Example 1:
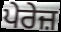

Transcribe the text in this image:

ਪੇਰੇਜ਼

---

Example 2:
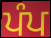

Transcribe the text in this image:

ਪੰਪ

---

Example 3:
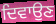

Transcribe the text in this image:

ਦਿਵਾਉਣ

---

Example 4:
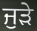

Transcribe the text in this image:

ਜੁੜੇ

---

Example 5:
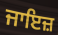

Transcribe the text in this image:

ਜਾਇਜ਼